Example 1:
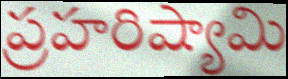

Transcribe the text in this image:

ప్రహరిష్యామి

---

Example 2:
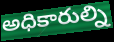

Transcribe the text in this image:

అధికారుల్ని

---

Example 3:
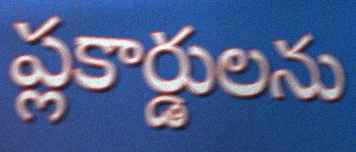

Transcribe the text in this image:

ప్లకార్డులను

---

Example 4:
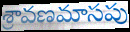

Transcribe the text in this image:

శ్రావణమాసపు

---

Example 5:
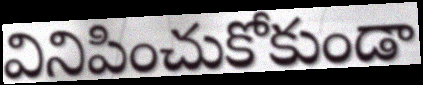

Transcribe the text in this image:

వినిపించుకోకుండా